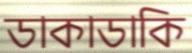
ডাকাডাকি